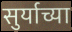
सुर्याच्या